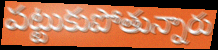
పట్టుకుపోతున్నారు